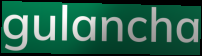
gulancha